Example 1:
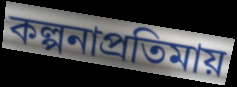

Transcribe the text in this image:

কল্পনাপ্রতিমায়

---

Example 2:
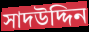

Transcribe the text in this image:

সাদউদ্দিন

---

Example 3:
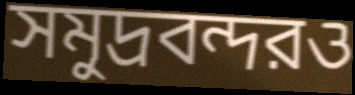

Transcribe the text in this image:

সমুদ্রবন্দরও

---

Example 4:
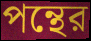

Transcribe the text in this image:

পন্থের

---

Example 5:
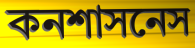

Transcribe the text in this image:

কনশাসনেস